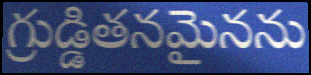
గ్రుడ్డితనమైనను